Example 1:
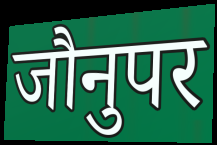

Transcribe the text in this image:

जौनुपर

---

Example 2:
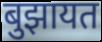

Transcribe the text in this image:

बुझायत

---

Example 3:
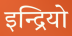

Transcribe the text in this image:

इन्द्रियो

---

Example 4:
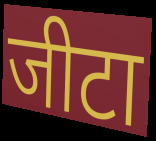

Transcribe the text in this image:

जीटा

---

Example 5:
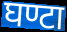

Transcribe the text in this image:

घण्टा